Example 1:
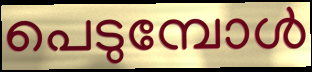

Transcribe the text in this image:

പെടുമ്പോൾ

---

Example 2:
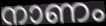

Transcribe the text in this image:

നാണം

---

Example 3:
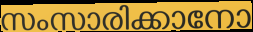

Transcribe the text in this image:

സംസാരിക്കാനോ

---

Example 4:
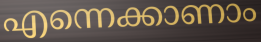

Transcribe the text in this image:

എന്നെക്കാണാം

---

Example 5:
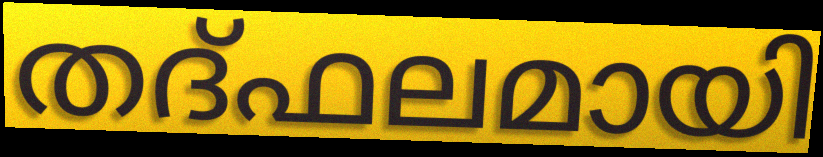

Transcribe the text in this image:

തദ്ഫലമായി